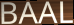
BAAL